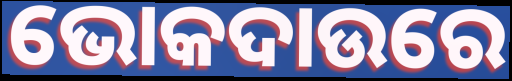
ଭୋକଦାଉରେ